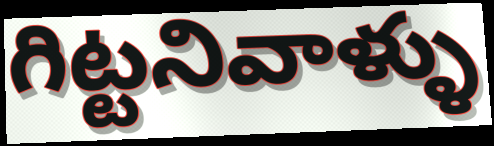
గిట్టనివాళ్ళు